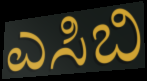
ಎಸಿಬಿ